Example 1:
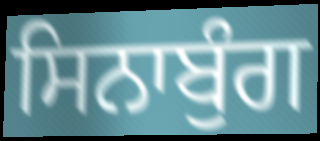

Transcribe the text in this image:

ਸਿਨਾਬੁੰਗ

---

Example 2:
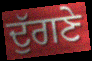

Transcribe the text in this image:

ਦੁੱਗਣੇ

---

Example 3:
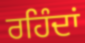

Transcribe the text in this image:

ਰਹਿੰਦਾਂ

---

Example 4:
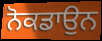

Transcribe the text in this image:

ਨੋਕਡਾਉਨ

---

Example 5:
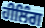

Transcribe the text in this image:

ਹੀਲਿੰਗ